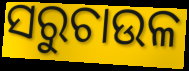
ସରୁଚାଉଳ